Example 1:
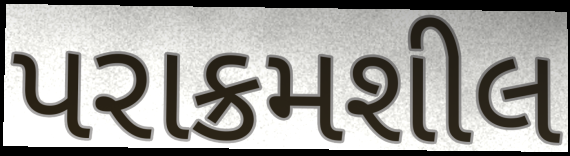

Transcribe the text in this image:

પરાક્રમશીલ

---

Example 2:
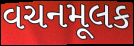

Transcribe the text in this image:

વચનમૂલક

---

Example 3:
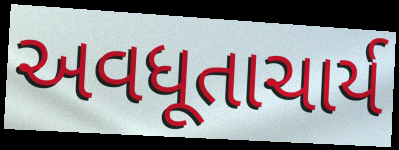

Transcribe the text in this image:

અવધૂતાચાર્ય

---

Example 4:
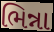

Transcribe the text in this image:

ભિન્ના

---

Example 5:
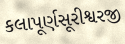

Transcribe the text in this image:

કલાપૂર્ણસૂરીશ્વરજી